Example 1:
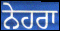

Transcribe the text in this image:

ਨੇਹਰਾ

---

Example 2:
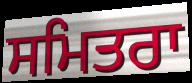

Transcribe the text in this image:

ਸਮਿਤਰਾ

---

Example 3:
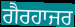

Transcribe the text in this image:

ਗੈਰਹਾਜਰ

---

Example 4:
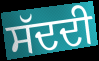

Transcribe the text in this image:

ਸੱਦਦੀ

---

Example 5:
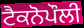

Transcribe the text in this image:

ਟੈਕਨੋਪੌਲੀ